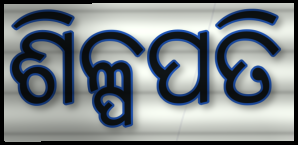
ଶିଳ୍ପପତି